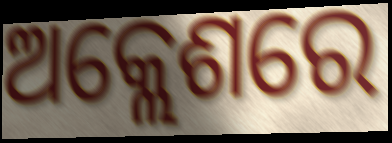
ଅକ୍ଲେଶରେ